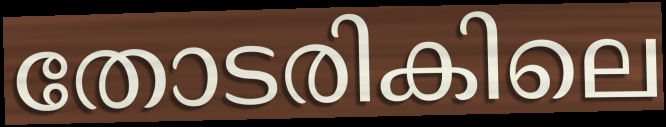
തോടരികിലെ